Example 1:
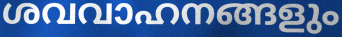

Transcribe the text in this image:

ശവവാഹനങ്ങളും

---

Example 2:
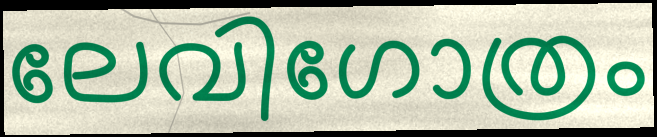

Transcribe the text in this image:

ലേവിഗോത്രം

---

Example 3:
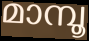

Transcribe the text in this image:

മാമ്പൂ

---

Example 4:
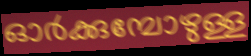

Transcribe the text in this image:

ഓർക്കുമ്പോഴുള്ള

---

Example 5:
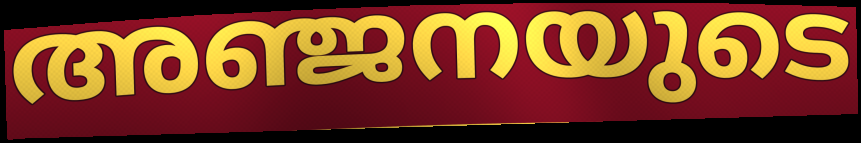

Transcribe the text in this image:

അഞ്ജനയുടെ